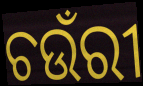
ଚଉଁରୀ